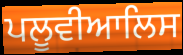
ਪਲੂਵੀਆਲਿਸ